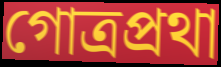
গোত্রপ্রথা